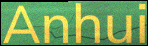
Anhui